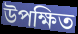
উপক্ষিত